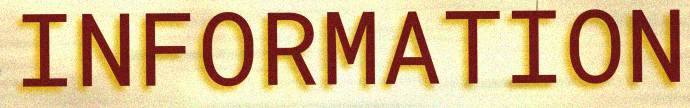
INFORMATION